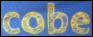
cobe